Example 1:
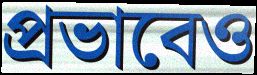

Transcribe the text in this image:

প্রভাবেও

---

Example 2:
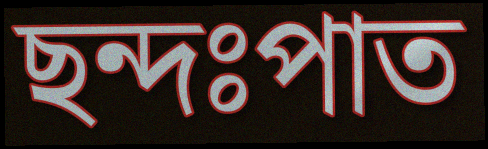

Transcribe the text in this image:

ছন্দঃপাত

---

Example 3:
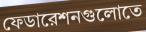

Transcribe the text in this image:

ফেডারেশনগুলোতে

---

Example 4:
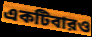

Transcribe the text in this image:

একটিবারও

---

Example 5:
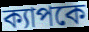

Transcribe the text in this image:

ক্যাপকে